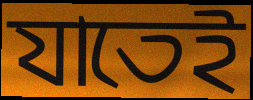
যাতেই